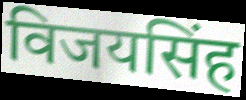
विजयसिंह